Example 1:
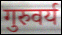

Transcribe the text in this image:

गुरुवर्य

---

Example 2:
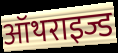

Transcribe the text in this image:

ऑथराइज्ड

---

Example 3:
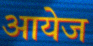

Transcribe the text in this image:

आयेज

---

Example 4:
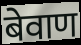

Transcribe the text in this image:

बेवाण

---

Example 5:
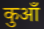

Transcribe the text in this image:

कुआँ